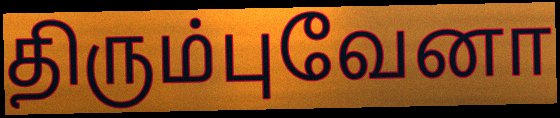
திரும்புவேனா